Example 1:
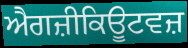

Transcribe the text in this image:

ਐਗਜ਼ੀਕਿਊਟਵਜ਼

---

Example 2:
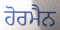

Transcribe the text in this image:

ਹੋਰਮੈਨ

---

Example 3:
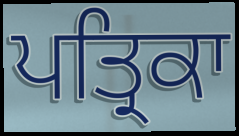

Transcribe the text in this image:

ਪਤ੍ਰਿਕਾ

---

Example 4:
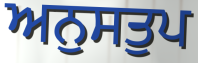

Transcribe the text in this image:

ਅਨੁਸਤੁਪ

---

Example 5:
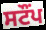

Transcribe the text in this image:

ਸਟੌਂਪ